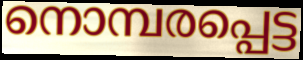
നൊമ്പരപ്പെട്ട